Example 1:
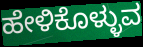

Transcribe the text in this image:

ಹೇಳಿಕೊಳ್ಳುವ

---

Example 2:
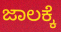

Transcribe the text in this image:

ಜಾಲಕ್ಕೆ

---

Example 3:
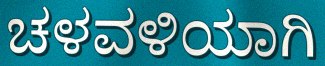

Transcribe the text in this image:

ಚಳವಳಿಯಾಗಿ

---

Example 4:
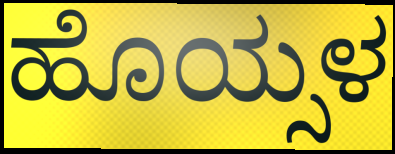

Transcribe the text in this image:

ಹೊಯ್ಸಳ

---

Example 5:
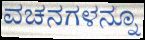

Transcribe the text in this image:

ವಚನಗಳನ್ನೂ